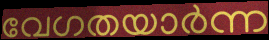
വേഗതയാർന്ന